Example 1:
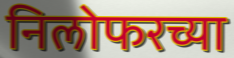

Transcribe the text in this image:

निलोफरच्या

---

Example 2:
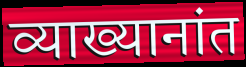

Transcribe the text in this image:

व्याख्यानांत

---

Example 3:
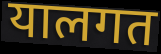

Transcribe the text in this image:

यालगत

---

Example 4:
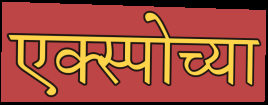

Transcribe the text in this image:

एक्स्पोच्या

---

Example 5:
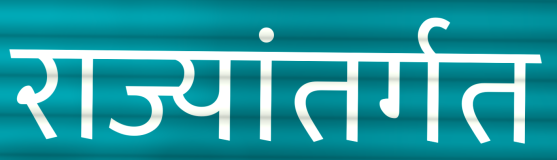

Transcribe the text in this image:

राज्यांतर्गत